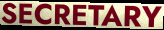
SECRETARY